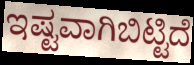
ಇಷ್ಟವಾಗಿಬಿಟ್ಟಿದೆ